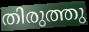
തിരുത്തു